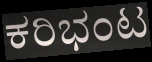
ಕರಿಭಂಟ